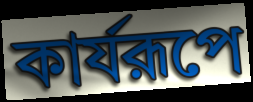
কার্যরূপে